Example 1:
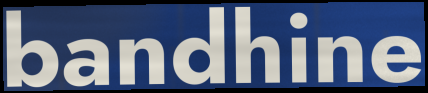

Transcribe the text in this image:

bandhine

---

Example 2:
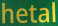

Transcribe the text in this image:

hetal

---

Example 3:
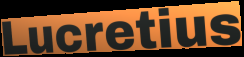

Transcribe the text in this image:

Lucretius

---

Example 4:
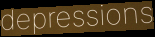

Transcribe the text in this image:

depressions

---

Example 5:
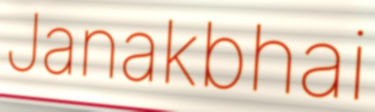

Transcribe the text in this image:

Janakbhai